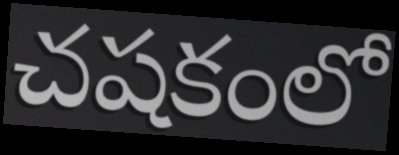
చషకంలో